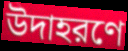
উদাহরণে